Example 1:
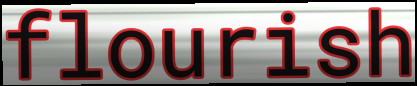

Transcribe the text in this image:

flourish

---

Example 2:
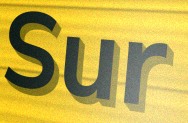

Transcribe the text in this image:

Sur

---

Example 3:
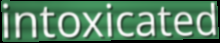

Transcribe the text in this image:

intoxicated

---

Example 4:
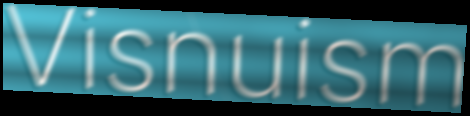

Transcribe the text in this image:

Visnuism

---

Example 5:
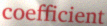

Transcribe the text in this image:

coefficient